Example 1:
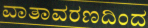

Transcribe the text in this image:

ವಾತಾವರಣದಿಂದ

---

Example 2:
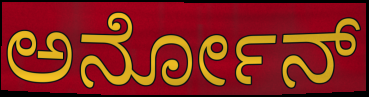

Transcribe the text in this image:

ಅರ್ನೋನ್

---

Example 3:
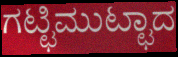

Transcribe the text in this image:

ಗಟ್ಟಿಮುಟ್ಟಾದ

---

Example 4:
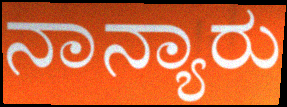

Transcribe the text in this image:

ನಾನ್ಯಾರು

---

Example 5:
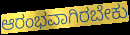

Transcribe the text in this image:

ಆರಂಭವಾಗಿರಬೇಕು